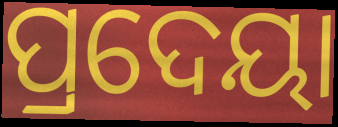
ପ୍ରଦେୟା